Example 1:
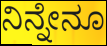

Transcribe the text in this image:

ನಿನ್ನೇನೂ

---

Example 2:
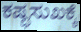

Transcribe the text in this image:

ಕಷ್ಟಸುಖಕ್ಕೆ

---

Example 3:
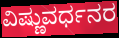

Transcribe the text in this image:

ವಿಷ್ಣುವರ್ಧನರ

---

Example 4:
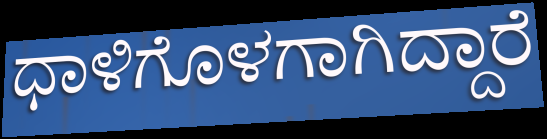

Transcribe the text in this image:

ಧಾಳಿಗೊಳಗಾಗಿದ್ದಾರೆ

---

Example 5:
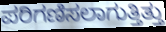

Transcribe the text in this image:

ಪರಿಗಣಿಸಲಾಗುತ್ತಿತ್ತು